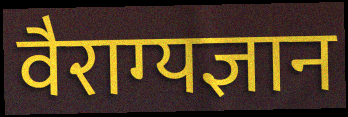
वैराग्यज्ञान